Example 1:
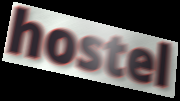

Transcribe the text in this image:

hostel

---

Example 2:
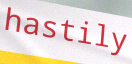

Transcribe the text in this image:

hastily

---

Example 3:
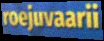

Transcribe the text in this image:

roejuvaarii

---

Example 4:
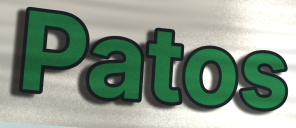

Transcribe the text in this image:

Patos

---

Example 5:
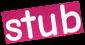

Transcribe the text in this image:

stub